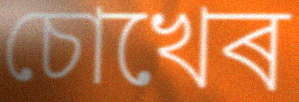
চোখেৰ